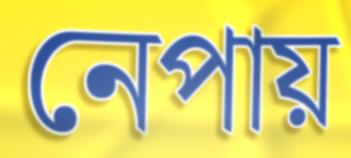
নেপায়